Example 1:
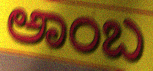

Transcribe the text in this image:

ಅಾಂಬ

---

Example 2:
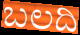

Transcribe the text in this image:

ಬಲದಿ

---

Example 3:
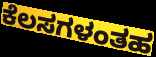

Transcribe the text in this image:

ಕೆಲಸಗಳಂತಹ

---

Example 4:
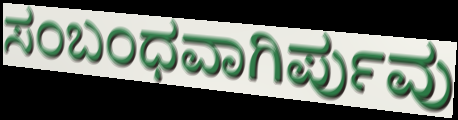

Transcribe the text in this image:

ಸಂಬಂಧವಾಗಿರ್ಪುವು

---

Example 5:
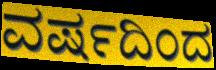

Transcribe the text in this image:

ವರ್ಷದಿಂದ